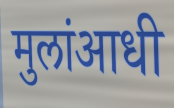
मुलांआधी